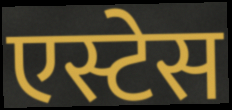
एस्टेस